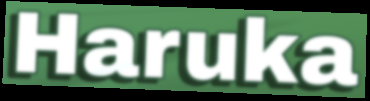
Haruka